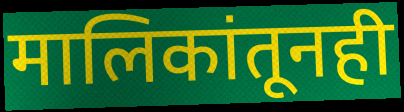
मालिकांतूनही